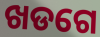
ଖଡଗେ